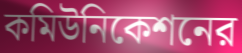
কমিউনিকেশনের